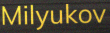
Milyukov